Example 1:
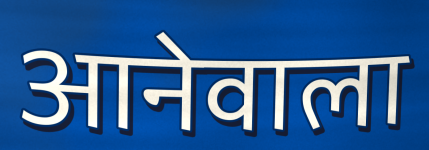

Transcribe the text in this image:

आनेवाला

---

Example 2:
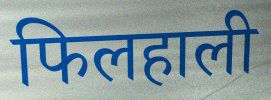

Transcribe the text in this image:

फिलहाली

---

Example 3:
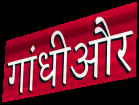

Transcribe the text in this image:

गांधीऔर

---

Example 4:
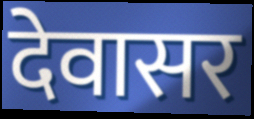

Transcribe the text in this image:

देवासर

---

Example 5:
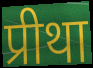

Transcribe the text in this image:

प्रीथा